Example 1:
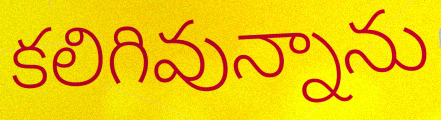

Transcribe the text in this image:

కలిగివున్నాను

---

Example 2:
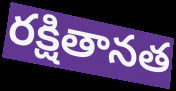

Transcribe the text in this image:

రక్షితానత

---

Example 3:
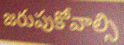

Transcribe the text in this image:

జరుపుకోవాల్సి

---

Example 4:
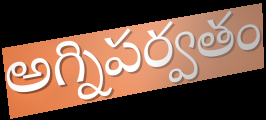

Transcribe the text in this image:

అగ్నిపర్వతం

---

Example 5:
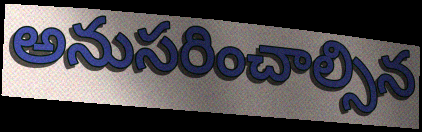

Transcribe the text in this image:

అనుసరించాల్సిన